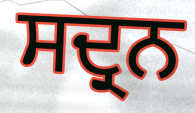
ਸਦ੍ਰਨ